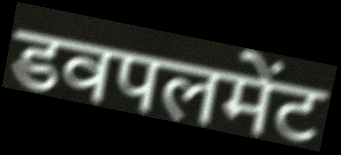
डवपलमेंट